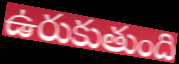
ఉరుకుతుంది